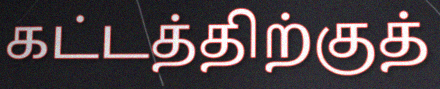
கட்டத்திற்குத்